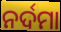
ନର୍ଦମା